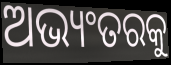
ଅଭ୍ୟଂତରକୁ